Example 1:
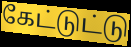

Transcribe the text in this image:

கேட்டுட்டு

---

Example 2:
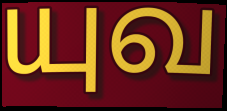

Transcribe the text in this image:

யுவ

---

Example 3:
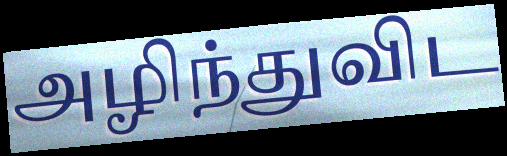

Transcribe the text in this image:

அழிந்துவிட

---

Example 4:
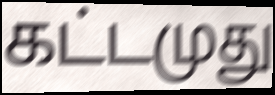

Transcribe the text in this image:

கட்டமுது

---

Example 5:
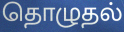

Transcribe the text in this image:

தொழுதல்